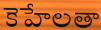
కెహేలతా